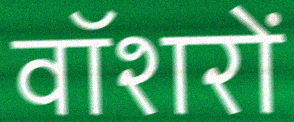
वॉशरों